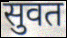
सुवत